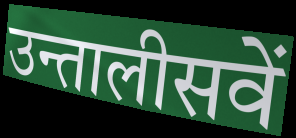
उन्तालीसवें